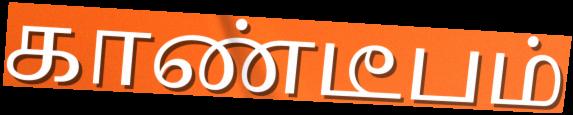
காண்டீபம்